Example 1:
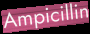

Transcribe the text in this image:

Ampicillin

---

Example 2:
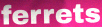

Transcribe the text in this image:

ferrets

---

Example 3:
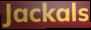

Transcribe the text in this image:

Jackals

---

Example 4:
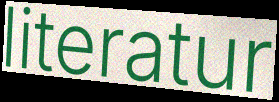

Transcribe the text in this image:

literatur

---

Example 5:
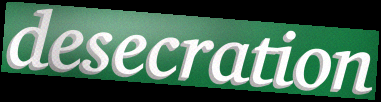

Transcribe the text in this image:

desecration